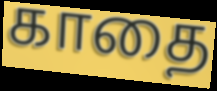
காதை